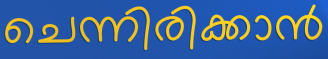
ചെന്നിരിക്കാൻ